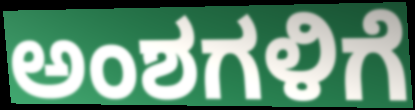
ಅಂಶಗಳಿಗೆ